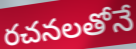
రచనలతోనే